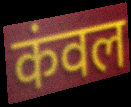
कंवल